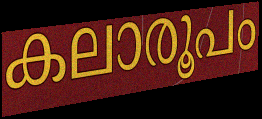
കലാരൂപം